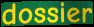
dossier